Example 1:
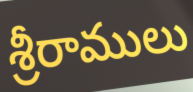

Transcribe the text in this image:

శ్రీరాములు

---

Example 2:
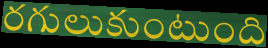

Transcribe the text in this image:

రగులుకుంటుంది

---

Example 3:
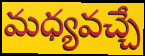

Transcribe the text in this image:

మధ్యవచ్చే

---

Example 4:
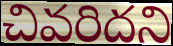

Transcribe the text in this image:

చివరిదని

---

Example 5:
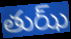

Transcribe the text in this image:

తుఝ్